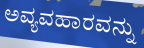
ಅವ್ಯವಹಾರವನ್ನು